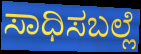
ಸಾಧಿಸಬಲ್ಲೆ